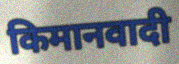
किमानवादी